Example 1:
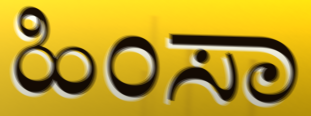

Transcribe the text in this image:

ಹಿಂಸಾ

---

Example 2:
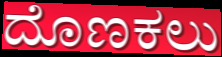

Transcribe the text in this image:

ದೊಣಕಲು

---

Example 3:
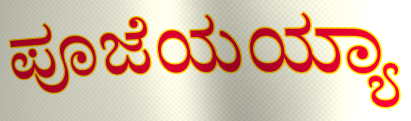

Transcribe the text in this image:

ಪೂಜೆಯಯ್ಯಾ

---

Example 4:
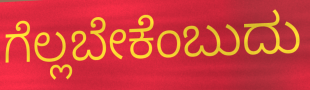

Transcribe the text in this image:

ಗೆಲ್ಲಬೇಕೆಂಬುದು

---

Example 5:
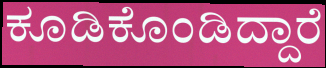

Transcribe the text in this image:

ಕೂಡಿಕೊಂಡಿದ್ದಾರೆ